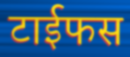
टाईफस